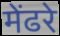
मेंढरे